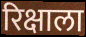
रिक्षाला